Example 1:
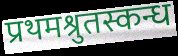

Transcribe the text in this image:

प्रथमश्रुतस्कन्ध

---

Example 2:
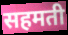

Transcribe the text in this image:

सहमती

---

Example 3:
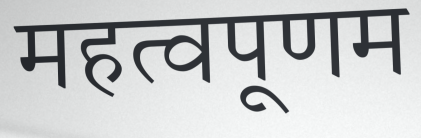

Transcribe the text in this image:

महत्वपूणम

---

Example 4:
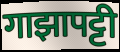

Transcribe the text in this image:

गाझापट्टी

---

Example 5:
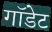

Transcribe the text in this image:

गॉडेट